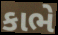
કાભે